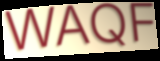
WAQF